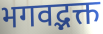
भगवद्भक्त